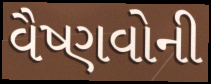
વૈષ્ણવોની